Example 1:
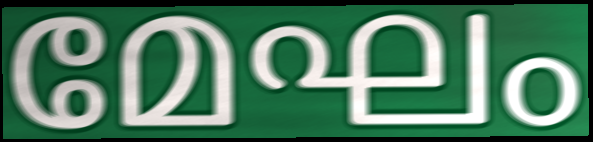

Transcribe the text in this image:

മേഘം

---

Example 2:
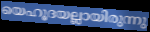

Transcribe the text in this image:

യെഹൂദയല്ലായിരുന്നു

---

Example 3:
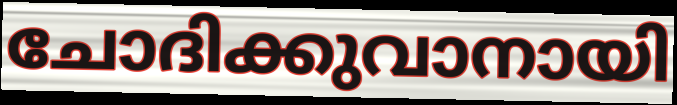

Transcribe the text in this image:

ചോദിക്കുവാനായി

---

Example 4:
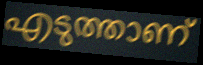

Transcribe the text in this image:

എടുത്താണ്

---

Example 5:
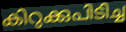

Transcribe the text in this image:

കിറുക്കുപിടിച്ച